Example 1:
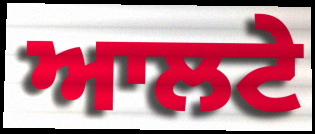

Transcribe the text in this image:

ਆਲਟੇ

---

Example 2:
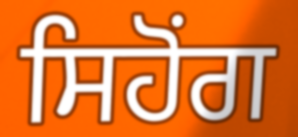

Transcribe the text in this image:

ਸਿਹੋਂਗ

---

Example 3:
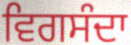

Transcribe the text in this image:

ਵਿਗਸੰਦਾ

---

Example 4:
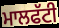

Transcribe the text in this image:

ਮਾਲਫੱਟੀ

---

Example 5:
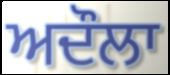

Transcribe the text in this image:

ਅਦੌਲਾ